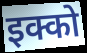
इक्को